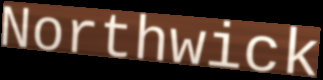
Northwick